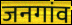
जनगांव